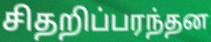
சிதறிப்பரந்தன